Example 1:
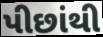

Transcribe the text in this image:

પીછાંથી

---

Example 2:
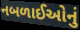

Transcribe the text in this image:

નબળાઈઓનું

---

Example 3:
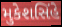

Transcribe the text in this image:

મુકેશસિંહે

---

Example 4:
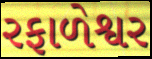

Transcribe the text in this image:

રફાળેશ્વર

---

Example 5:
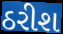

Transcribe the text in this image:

ઠરીશ